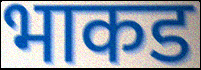
भाकड